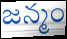
జన్మం